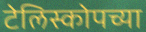
टेलिस्कोपच्या